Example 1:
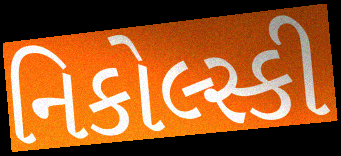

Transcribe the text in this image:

નિકોલ્સ્કી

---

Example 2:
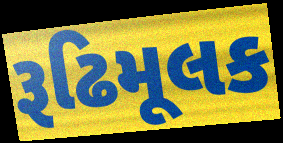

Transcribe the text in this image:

રૂઢિમૂલક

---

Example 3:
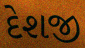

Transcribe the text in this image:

દેશજી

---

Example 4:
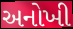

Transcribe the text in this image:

અનોખી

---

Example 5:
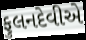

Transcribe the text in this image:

ફુલનદેવીએ